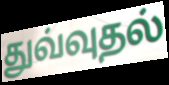
துவ்வுதல்